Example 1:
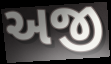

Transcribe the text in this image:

અજી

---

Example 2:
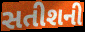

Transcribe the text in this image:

સતીશની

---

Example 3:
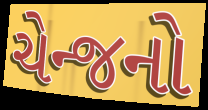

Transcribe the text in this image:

ચેન્જનો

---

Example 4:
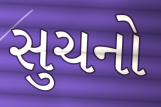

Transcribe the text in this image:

સુચનો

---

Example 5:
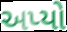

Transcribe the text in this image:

અપ્યો